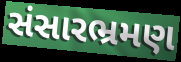
સંસારભ્રમણ